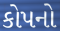
કોપનો